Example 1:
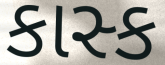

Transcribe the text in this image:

કાસ્ક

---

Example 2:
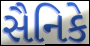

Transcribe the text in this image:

સૈનિકે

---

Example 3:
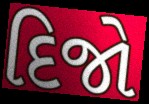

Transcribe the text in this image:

દિજો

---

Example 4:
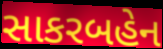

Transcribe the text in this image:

સાકરબહેન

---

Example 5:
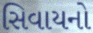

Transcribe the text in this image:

સિવાયનો